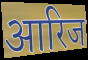
आरिज